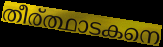
തീര്ത്ഥാടകനെ